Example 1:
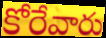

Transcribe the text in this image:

కోరేవారు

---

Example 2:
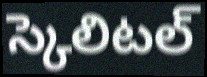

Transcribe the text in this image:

స్కెలిటల్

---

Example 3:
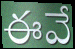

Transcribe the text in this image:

ఈవే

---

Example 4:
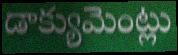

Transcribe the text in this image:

డాక్యుమెంట్లు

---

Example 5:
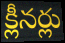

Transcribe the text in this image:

క్లీనర్లు